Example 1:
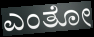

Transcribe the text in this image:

ಎಂತೋ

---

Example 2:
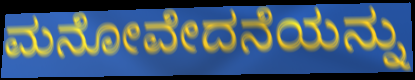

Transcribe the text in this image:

ಮನೋವೇದನೆಯನ್ನು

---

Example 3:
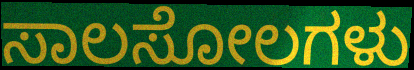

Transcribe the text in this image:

ಸಾಲಸೋಲಗಳು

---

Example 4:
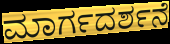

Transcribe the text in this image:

ಮಾರ್ಗದರ್ಶನೆ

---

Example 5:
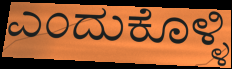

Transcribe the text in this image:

ಎಂದುಕೊಳ್ಳಿ